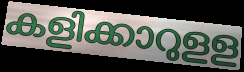
കളിക്കാറുളള